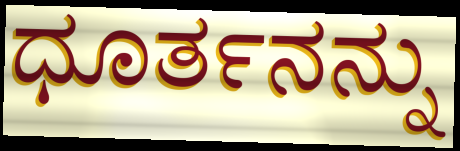
ಧೂರ್ತನನ್ನು